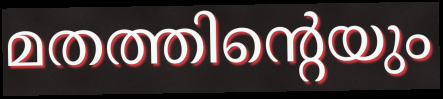
മതത്തിന്റെയും